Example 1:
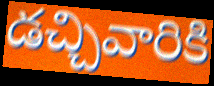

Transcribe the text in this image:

డచ్చివారికి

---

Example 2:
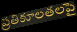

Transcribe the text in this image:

ప్రతికూలతలపై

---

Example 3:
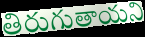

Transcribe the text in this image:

తిరుగుతాయని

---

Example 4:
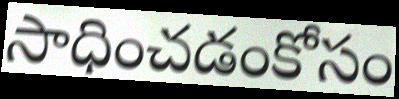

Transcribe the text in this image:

సాధించడంకోసం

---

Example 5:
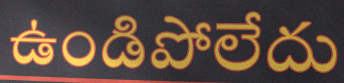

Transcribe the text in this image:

ఉండిపోలేదు